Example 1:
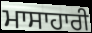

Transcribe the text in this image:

ਮਾਸਾਹਾਰੀ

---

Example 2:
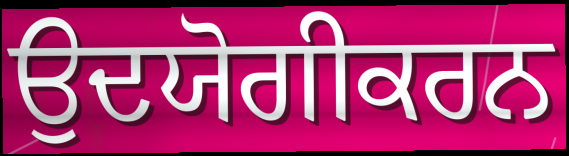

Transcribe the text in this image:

ਉਦਯੋਗੀਕਰਨ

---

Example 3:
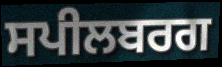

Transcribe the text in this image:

ਸਪੀਲਬਰਗ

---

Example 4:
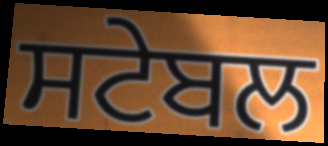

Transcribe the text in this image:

ਸਟੇਬਲ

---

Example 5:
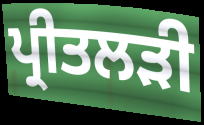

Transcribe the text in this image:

ਪ੍ਰੀਤਲੜੀ